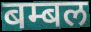
बम्बल